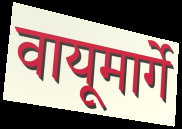
वायूमार्गे